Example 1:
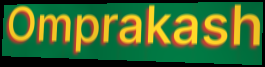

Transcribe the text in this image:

Omprakash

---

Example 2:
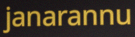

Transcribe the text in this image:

janarannu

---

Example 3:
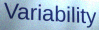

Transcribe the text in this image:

Variability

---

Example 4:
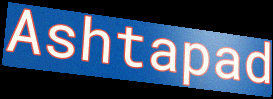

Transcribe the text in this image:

Ashtapad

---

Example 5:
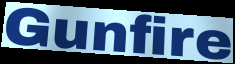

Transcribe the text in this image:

Gunfire